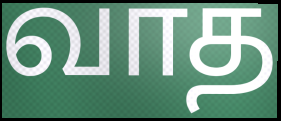
வாத